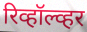
रिव्हॉल्व्हर